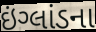
ઇંગ્લાંડના